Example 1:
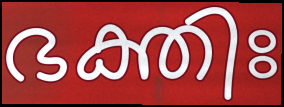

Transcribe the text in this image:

ഭക്തിഃ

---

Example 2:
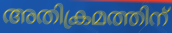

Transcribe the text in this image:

അതിക്രമത്തിന്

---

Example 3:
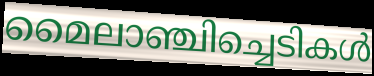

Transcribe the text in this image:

മൈലാഞ്ചിച്ചെടികൾ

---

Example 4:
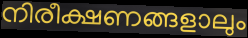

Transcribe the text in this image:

നിരീക്ഷണങ്ങളാലും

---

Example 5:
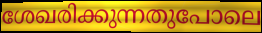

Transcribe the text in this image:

ശേഖരിക്കുന്നതുപോലെ